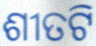
ଶୀତଟି